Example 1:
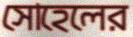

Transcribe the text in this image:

সোহেলের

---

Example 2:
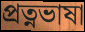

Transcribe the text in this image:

প্রত্নভাষা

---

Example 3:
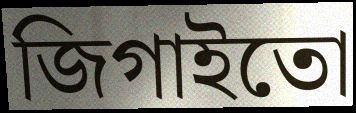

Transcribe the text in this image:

জিগাইতো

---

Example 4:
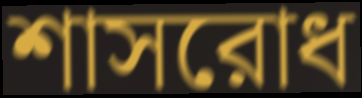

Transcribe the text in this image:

শাসরোধ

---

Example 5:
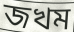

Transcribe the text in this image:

জখম